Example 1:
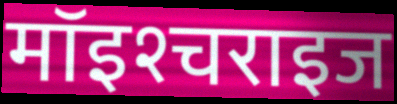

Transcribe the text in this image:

मॉइश्चराइज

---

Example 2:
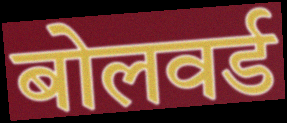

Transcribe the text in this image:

बोलवर्ड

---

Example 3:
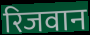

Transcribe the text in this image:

रिजवान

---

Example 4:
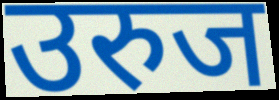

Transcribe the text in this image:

उरुज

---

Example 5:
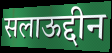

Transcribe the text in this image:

सलाऊद्दीन